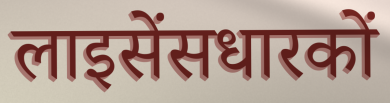
लाइसेंसधारकों